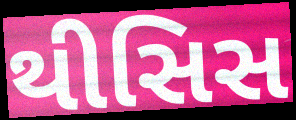
થીસિસ